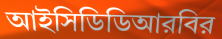
আইসিডিডিআরবির